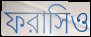
ফরাসিও